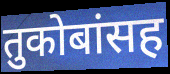
तुकोबांसह